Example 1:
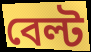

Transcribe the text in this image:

বেল্ট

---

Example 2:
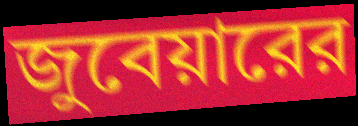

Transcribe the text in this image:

জুবেয়ারের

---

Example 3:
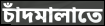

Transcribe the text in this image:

চাঁদমালাতে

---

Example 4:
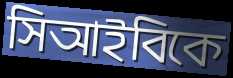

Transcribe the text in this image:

সিআইবিকে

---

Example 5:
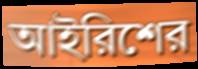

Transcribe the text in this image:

আইরিশের